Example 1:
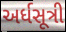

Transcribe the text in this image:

અર્ધસૂત્રી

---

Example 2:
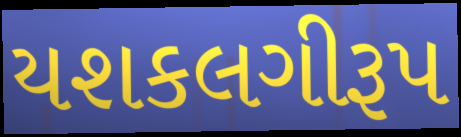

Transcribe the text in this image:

યશકલગીરૂપ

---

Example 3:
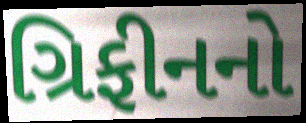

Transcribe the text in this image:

ગ્રિફીનનો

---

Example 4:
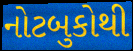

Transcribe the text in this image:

નોટબુકોથી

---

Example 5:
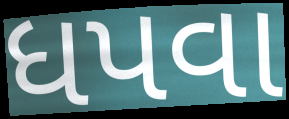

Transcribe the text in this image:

ધપવા